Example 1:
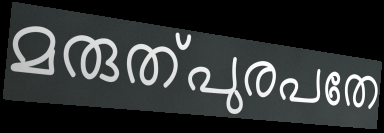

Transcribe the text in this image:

മരുത്പുരപതേ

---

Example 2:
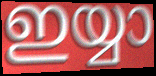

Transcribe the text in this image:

ഇയ്യാ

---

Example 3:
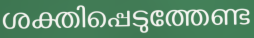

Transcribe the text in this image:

ശക്തിപ്പെടുത്തേണ്ട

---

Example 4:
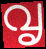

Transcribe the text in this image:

വൃ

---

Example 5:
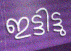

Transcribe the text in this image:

ഇട്ടിട്ടു